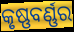
କୃଷ୍ଣବର୍ଣ୍ଣର